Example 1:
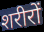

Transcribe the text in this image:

शरीरों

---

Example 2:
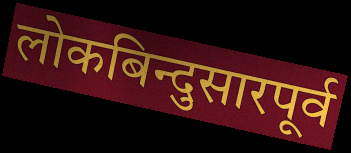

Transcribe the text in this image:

लोकबिन्दुसारपूर्व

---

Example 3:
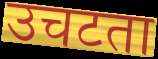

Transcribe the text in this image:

उचटता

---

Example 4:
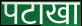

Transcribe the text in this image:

पटाखा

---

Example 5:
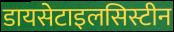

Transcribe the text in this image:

डायसेटाइलसिस्टीन